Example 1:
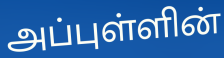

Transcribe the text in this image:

அப்புள்ளின்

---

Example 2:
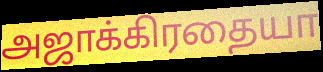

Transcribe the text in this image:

அஜாக்கிரதையா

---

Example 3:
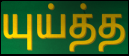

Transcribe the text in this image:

யுய்த்த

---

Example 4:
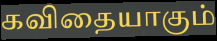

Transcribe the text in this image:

கவிதையாகும்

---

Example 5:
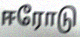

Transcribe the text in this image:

ஈரோடு